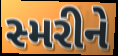
સ્મરીને